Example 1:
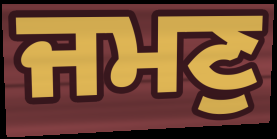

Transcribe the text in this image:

ਜਮਣੁ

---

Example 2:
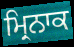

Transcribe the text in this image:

ਮ੍ਰਿਨਾਕ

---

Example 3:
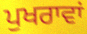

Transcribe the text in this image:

ਪੁਖਰਾਵਾਂ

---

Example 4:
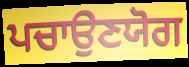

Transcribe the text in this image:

ਪਚਾਉਣਯੋਗ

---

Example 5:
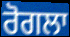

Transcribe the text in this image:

ਰੋਗਲਾ